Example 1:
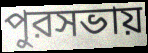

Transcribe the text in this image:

পুরসভায়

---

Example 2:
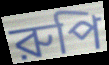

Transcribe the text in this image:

রুপি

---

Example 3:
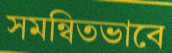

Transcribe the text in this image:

সমন্বিতভাবে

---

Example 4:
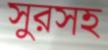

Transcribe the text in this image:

সুরসহ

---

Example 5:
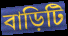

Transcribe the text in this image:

বাড়িটি